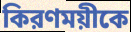
কিরণময়ীকে